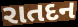
રાતદન